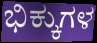
ಭಿಕ್ಕುಗಳ